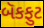
બૅકફુટ